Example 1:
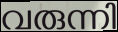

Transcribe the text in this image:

വരുന്നി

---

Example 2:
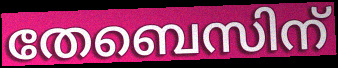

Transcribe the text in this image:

തേബെസിന്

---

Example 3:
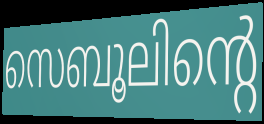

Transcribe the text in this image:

സെബൂലിന്റെ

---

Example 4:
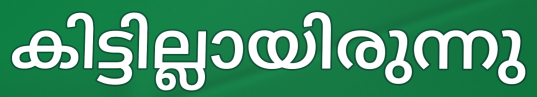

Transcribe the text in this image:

കിട്ടില്ലായിരുന്നു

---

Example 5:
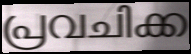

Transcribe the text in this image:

പ്രവചിക്ക